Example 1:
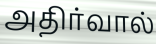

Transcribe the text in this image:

அதிர்வால்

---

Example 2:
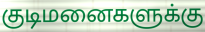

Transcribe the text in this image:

குடிமனைகளுக்கு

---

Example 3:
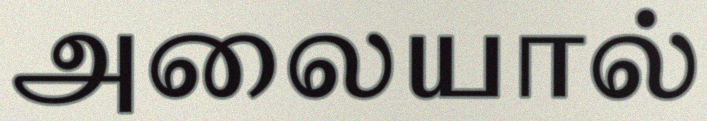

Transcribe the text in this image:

அலையால்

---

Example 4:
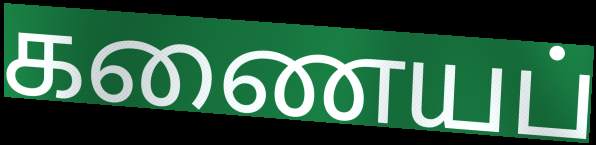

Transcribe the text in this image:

கணையப்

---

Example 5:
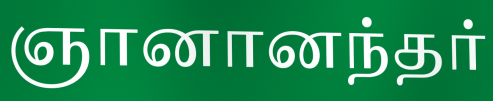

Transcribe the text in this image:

ஞானானந்தர்